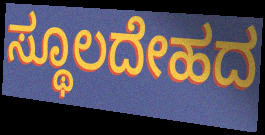
ಸ್ಥೂಲದೇಹದ